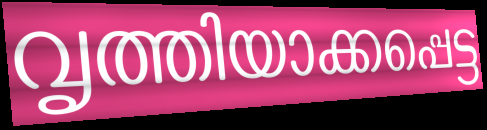
വൃത്തിയാക്കപ്പെട്ട